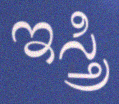
ಇಸ್ತ್ರಿ